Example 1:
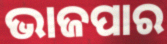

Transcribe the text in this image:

ଭାଜପାର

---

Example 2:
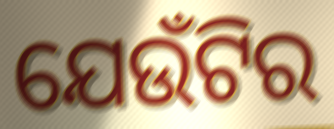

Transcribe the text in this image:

ଯେଉଁଟିର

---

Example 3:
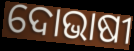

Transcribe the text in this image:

ଦୋଭାଷୀ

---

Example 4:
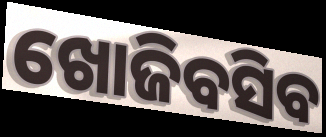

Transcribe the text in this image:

ଖୋଜିବସିବ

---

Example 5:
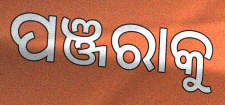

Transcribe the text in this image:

ପଞ୍ଜରାକୁ